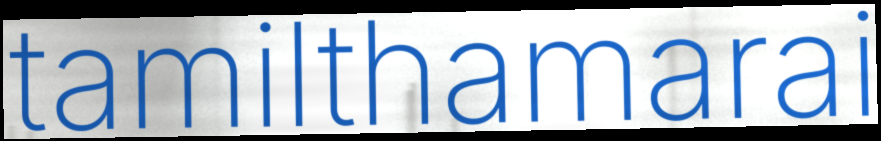
tamilthamarai